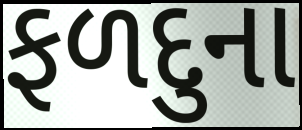
ફળદુના